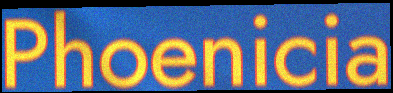
Phoenicia